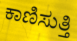
ಕಾಣಿಸುತ್ತಿ